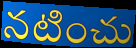
నటించు